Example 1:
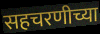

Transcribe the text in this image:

सहचरणीच्या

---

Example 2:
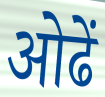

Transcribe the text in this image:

ओढें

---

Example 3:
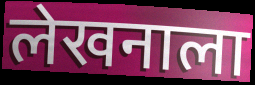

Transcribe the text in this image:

लेखनाला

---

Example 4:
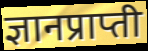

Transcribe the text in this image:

ज्ञानप्राप्ती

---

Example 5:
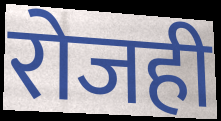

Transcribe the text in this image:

रोजही